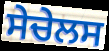
ਸੇਚੇਲਸ